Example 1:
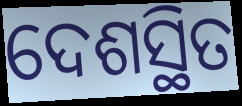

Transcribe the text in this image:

ଦେଶସ୍ଥିତ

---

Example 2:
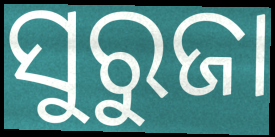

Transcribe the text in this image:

ସୁରୁଜା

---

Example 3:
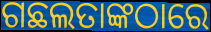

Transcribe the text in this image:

ଗଛଲତାଙ୍କଠାରେ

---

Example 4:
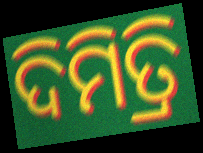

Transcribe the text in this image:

ଦିମିତ୍ରି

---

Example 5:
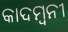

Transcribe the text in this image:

କାଦମ୍ୱନୀ